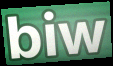
biw